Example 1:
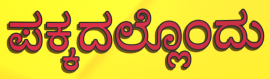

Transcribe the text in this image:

ಪಕ್ಕದಲ್ಲೊಂದು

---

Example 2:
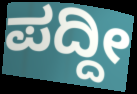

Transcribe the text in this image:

ಪದ್ದೀ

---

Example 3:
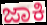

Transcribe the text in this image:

ಜಾಕಿ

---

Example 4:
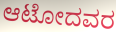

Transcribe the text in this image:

ಆಟೋದವರ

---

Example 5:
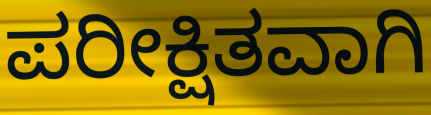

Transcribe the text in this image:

ಪರೀಕ್ಷಿತವಾಗಿ